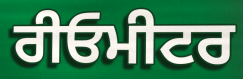
ਰੀਓਮੀਟਰ